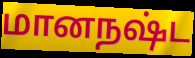
மானநஷ்ட